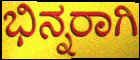
ಭಿನ್ನರಾಗಿ